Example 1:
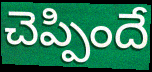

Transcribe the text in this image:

చెప్పిందే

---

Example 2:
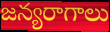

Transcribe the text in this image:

జన్యరాగాలు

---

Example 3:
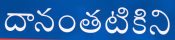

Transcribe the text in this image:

దానంతటికిని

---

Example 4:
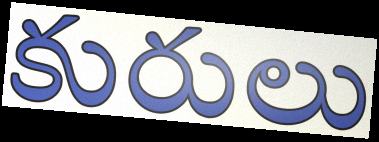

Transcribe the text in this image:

కురులు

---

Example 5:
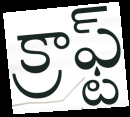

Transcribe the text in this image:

క్రాఫ్ట్